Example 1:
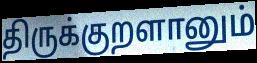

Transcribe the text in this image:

திருக்குறளானும்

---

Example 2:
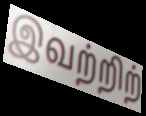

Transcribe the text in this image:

இவற்றிற்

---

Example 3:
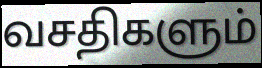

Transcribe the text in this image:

வசதிகளும்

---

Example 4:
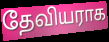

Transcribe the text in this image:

தேவியராக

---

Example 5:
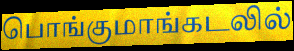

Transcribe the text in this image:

பொங்குமாங்கடலில்